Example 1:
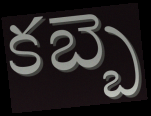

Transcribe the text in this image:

కబ్బె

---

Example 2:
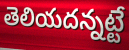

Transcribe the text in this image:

తెలియదన్నట్టే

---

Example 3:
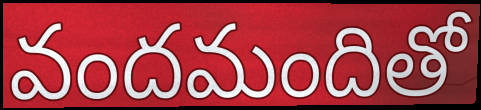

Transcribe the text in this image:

వందమందితో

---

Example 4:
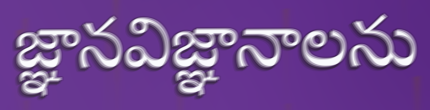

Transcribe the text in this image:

జ్ఞానవిజ్ఞానాలను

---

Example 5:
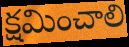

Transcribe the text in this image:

క్షమించాలి